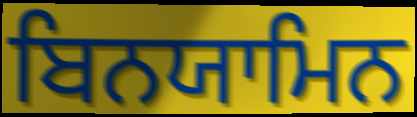
ਬਿਨਯਾਮਿਨ